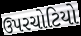
ઉપરચોટિયો